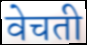
वेचती